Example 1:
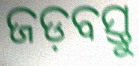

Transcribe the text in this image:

ଜଡ଼ବସ୍ତୁ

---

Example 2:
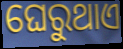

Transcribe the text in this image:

ଘେରୁଥାଏ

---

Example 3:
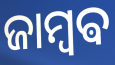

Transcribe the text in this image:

ଜାମ୍ବଵ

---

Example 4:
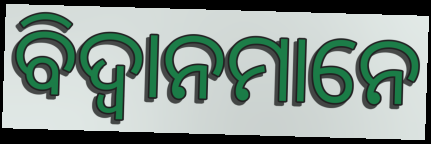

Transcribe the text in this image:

ବିଦ୍ଵାନମାନେ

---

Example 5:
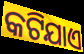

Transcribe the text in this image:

କଟିଯାଏ